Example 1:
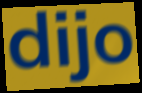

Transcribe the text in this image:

dijo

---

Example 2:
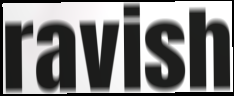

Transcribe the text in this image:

ravish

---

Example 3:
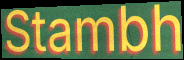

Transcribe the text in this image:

Stambh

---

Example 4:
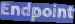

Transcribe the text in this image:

Endpoint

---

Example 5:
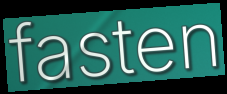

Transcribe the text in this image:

fasten